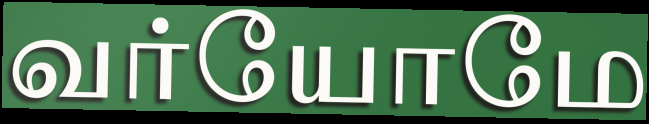
வர்யோமே